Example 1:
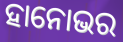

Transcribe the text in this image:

ହାନୋଭର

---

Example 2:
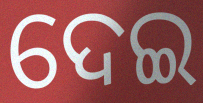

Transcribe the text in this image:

ଦେଇ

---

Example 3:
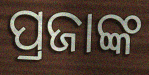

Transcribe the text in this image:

ପ୍ରଜାଙ୍କ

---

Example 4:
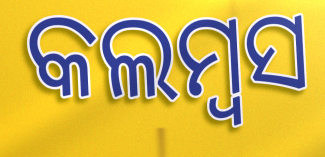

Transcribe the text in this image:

କଲମ୍ବସ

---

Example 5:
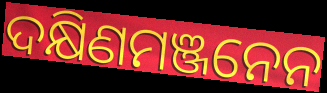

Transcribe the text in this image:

ଦକ୍ଷିଣମଞ୍ଜନେନ